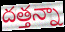
దత్తన్నా